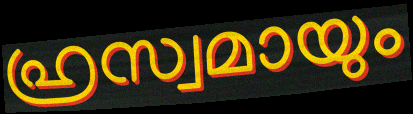
ഹ്രസ്വമായും